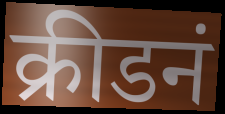
क्रीडनं